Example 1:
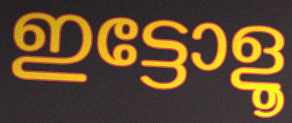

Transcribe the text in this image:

ഇട്ടോളൂ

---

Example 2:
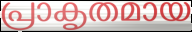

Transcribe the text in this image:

പ്രാകൃതമായ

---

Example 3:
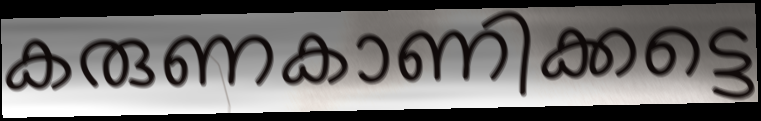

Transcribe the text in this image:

കരുണകാണിക്കട്ടെ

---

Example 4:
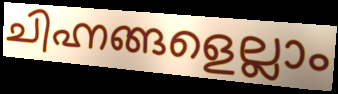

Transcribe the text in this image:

ചിഹ്നങ്ങളെല്ലാം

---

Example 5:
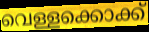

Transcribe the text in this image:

വെള്ളക്കൊക്ക്